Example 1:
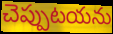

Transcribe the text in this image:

చెప్పుటయను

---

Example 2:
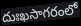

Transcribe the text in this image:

దుఃఖసాగరంలో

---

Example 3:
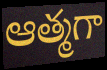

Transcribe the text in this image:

ఆత్మగా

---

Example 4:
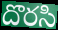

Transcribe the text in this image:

దొరసి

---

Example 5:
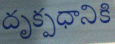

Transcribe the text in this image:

దృక్పధానికి